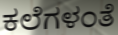
ಕಲೆಗಳಂತೆ